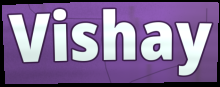
Vishay